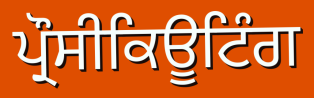
ਪ੍ਰੌਸੀਕਿਊਟਿੰਗ